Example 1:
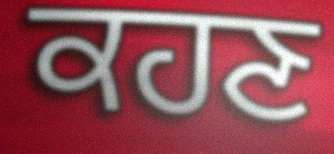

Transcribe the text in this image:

ਕਹਣ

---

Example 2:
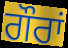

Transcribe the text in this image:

ਗੌਰਾਂ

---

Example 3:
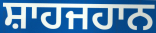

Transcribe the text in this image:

ਸ਼ਾਹਜਹਾਨ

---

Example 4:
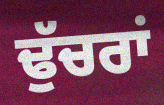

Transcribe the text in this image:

ਢੁੱਚਰਾਂ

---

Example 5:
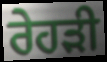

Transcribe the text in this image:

ਰੇਹੜੀ